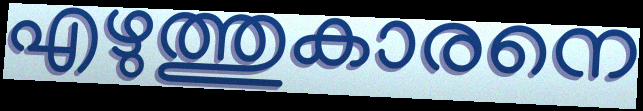
എഴുത്തുകാരനെ